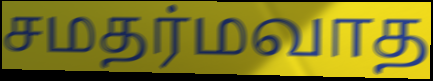
சமதர்மவாத